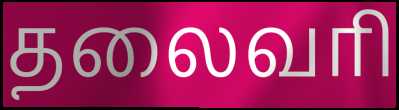
தலைவரி